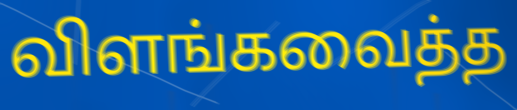
விளங்கவைத்த